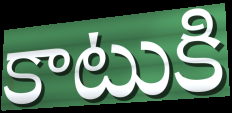
కాటుకి